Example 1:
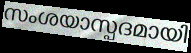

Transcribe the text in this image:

സംശയാസ്പദമായി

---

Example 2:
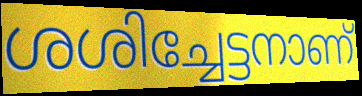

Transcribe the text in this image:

ശശിച്ചേട്ടനാണ്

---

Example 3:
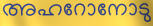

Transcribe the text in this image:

അഹറോനോടു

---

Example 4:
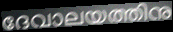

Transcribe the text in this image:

ദേവാലയത്തിനു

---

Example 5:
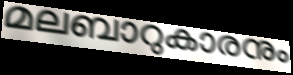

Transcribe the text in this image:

മലബാറുകാരനും